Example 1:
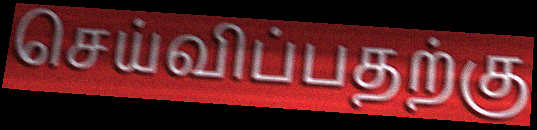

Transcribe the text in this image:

செய்விப்பதற்கு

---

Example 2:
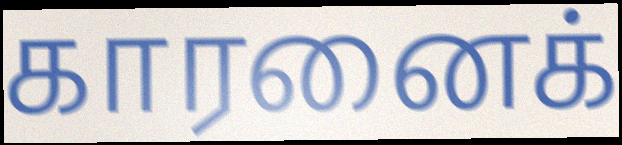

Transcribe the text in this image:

காரனைக்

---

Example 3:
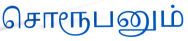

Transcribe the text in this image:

சொரூபனும்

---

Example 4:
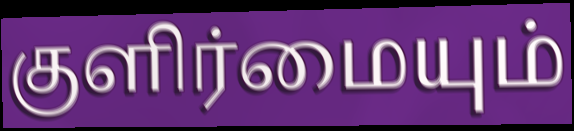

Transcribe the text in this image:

குளிர்மையும்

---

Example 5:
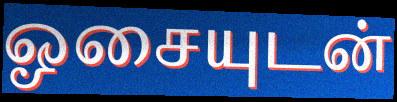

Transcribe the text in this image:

ஓசையுடன்